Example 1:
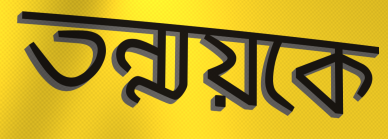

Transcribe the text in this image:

তন্ময়কে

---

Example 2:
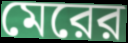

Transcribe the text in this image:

মেরের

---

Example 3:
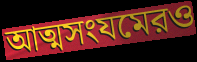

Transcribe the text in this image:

আত্মসংযমেরও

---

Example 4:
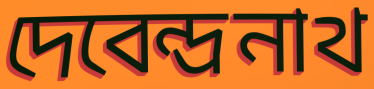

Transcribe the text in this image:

দেবেন্দ্রনাথ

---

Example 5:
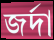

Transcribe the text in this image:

জর্দা